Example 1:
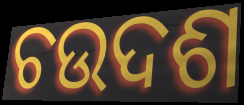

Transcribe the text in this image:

ଚଉଦଶ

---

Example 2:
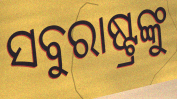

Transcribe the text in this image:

ସବୁରାଷ୍ଟ୍ରଙ୍କୁ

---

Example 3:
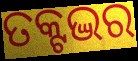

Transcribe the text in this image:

ତକ୍ଟଦ୍ଭର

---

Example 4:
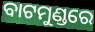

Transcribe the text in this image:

ବାଟମୁଣ୍ଡରେ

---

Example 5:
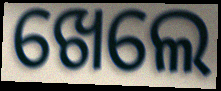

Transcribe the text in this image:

ଖେଲେ